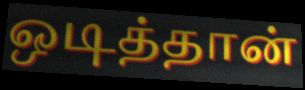
ஒடித்தான்